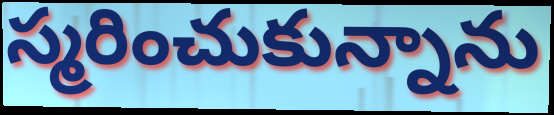
స్మరించుకున్నాను